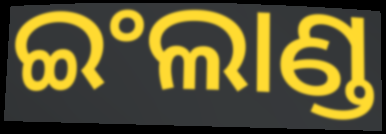
ଇଂଲାଣ୍ଡ